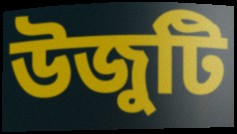
উজুটি